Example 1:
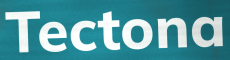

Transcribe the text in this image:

Tectona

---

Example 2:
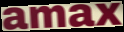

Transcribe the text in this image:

amax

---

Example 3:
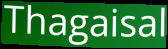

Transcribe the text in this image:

Thagaisal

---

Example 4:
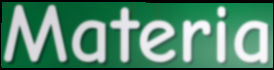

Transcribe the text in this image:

Materia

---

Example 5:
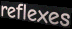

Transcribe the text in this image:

reflexes